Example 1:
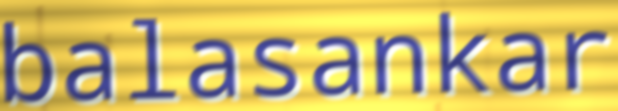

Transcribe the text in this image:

balasankar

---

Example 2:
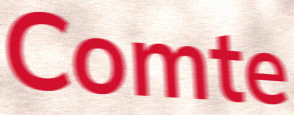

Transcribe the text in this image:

Comte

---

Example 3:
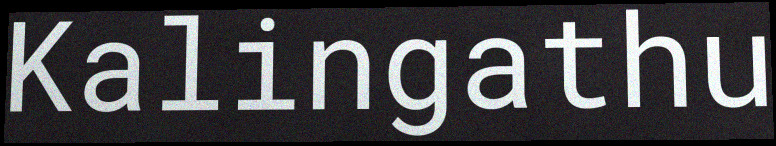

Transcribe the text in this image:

Kalingathu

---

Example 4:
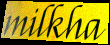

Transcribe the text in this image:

milkha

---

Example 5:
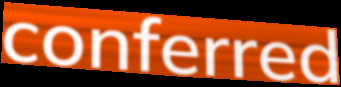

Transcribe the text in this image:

conferred